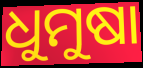
ଧୁମୁଷା